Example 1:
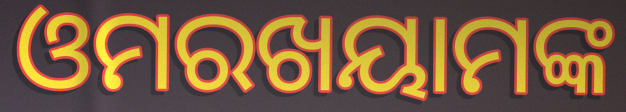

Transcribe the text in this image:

ଓମରଖୟାମଙ୍କ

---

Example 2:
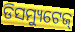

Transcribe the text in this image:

ଡିସମ୍ୟୁଟେଜ୍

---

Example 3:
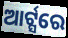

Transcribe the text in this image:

ଆର୍ଟ୍ସରେ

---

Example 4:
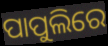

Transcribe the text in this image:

ପାପୁଲିରେ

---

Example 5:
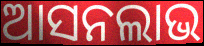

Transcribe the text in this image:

ଆସନଲାଭ